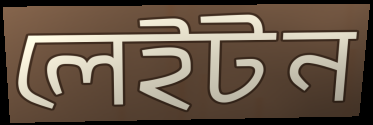
লেইটন